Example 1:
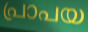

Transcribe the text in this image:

പ്രാപയ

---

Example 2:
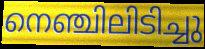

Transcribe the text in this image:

നെഞ്ചിലിടിച്ചു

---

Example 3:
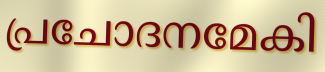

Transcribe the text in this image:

പ്രചോദനമേകി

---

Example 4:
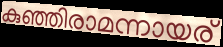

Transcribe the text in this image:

കുഞ്ഞിരാമന്നായര്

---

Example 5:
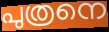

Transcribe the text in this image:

പുത്രനെ